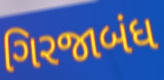
ગિરજાબંધ